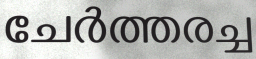
ചേർത്തരച്ച